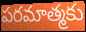
పరమాత్మకు